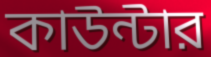
কাউন্টার